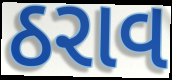
ઠરાવ